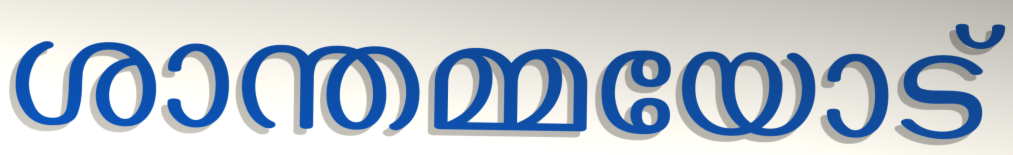
ശാന്തമ്മയോട്